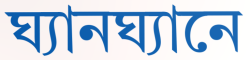
ঘ্যানঘ্যানে